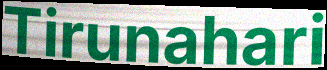
Tirunahari